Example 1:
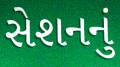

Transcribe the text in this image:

સેશનનું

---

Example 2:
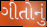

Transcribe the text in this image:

ગીતોનું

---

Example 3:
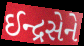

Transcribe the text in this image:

ઈન્દ્રસેને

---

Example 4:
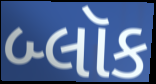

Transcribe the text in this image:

બ્લૉક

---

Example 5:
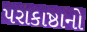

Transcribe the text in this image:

પરાકાષ્ઠાનો